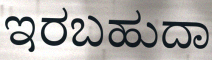
ಇರಬಹುದಾ